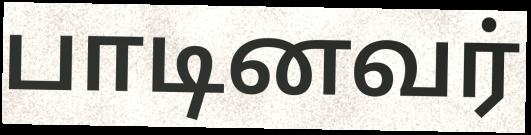
பாடினவர்